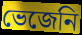
ভেজেনি